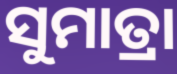
ସୁମାତ୍ରା